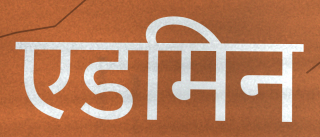
एडमिन